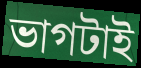
ভাগটাই